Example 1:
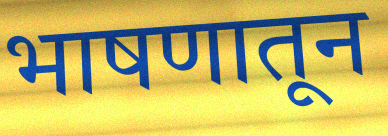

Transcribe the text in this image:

भाषणातून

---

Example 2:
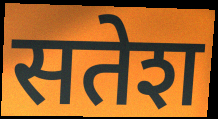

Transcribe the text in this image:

सतेश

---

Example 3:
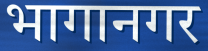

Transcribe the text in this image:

भागानगर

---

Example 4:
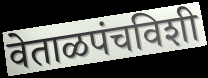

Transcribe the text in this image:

वेताळपंचविशी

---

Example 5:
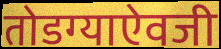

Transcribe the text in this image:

तोडग्याऐवजी